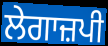
ਲੇਗਾਜ਼ਪੀ